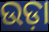
ଉଡ଼ା